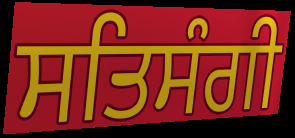
ਸਤਿਸੰਗੀ